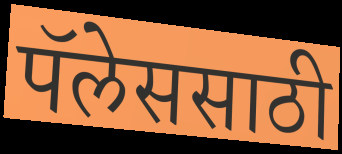
पॅलेससाठी